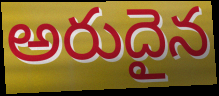
అరుదైన